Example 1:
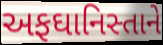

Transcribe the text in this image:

અફઘાનિસ્તાને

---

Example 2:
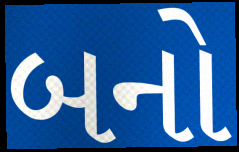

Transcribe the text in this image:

બનો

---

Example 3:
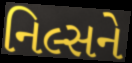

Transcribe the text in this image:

નિલ્સને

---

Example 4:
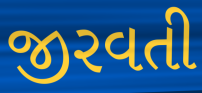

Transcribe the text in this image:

જીરવતી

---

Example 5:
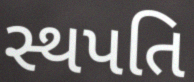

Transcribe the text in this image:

સ્થપતિ